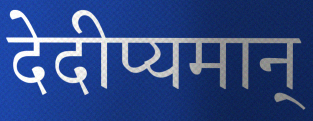
देदीप्यमान्